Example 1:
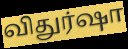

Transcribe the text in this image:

விதுர்ஷா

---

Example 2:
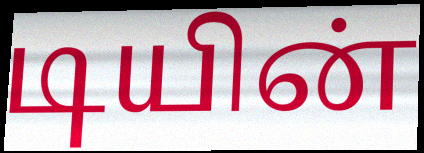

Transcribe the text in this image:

டியின்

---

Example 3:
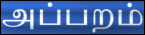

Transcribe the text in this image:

அப்பறம்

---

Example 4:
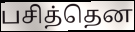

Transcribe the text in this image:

பசித்தென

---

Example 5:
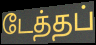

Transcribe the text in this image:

டேத்தப்